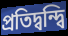
প্রতিদ্বন্দ্বি